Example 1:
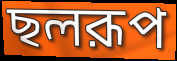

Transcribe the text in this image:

ছলরূপ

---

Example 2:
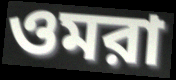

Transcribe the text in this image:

ওমরা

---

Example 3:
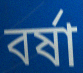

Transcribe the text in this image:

বর্ষা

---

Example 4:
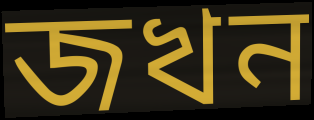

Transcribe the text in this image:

জখন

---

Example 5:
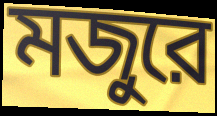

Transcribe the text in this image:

মজুরে